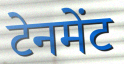
टेनमेंट